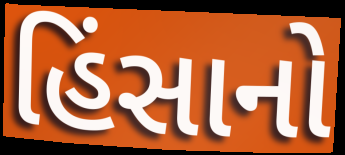
હિંસાનો